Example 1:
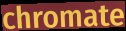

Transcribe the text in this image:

chromate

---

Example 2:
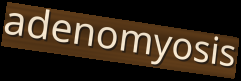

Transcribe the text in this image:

adenomyosis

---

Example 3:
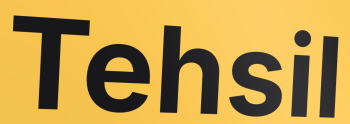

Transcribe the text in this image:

Tehsil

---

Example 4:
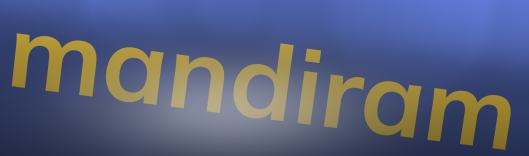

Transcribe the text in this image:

mandiram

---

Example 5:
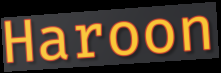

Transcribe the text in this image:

Haroon